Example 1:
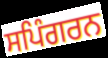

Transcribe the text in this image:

ਸਪਿੰਗਰਨ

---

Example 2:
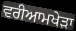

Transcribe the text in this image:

ਵਰੀਆਮਖੇੜਾ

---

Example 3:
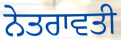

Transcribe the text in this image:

ਨੇਤਰਾਵਤੀ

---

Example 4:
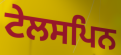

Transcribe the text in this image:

ਟੇਲਸਪਿਨ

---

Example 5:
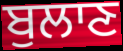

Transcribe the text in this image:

ਬੁਲਾਣ